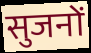
सुजनों